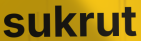
sukrut